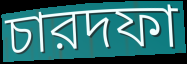
চারদফা